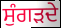
ਸੁੰਗੜਦੇ